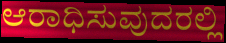
ಆರಾಧಿಸುವುದರಲ್ಲಿ